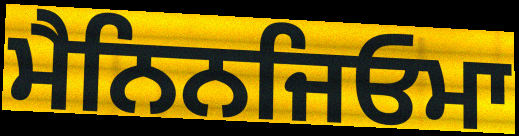
ਮੈਨਿਨਜਿਓਮਾ